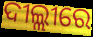
ଦୀଲ୍ଲୀରେ